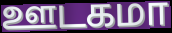
ஊடகமா